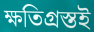
ক্ষতিগ্রস্তই